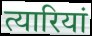
त्यारियां